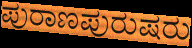
ಪುರಾಣಪುರುಷರು